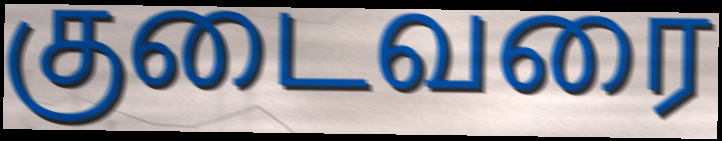
குடைவரை